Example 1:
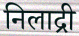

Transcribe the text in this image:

निलाद्री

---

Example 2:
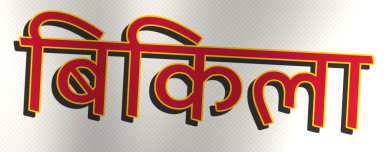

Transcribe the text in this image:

बिकिला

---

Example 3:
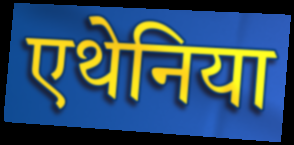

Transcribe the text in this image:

एथेनिया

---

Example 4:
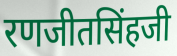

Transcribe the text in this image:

रणजीतसिंहजी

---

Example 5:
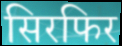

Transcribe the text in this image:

सिरफिर